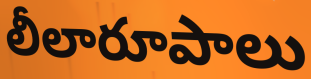
లీలారూపాలు